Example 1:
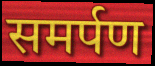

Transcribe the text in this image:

समर्पण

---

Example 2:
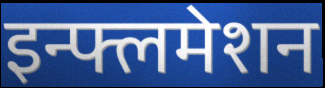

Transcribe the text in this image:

इन्फ्लमेशन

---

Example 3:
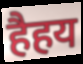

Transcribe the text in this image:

हैहय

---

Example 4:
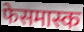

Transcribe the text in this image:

फेसमास्क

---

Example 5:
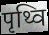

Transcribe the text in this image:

पृथ्वि